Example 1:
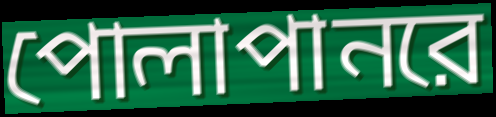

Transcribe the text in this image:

পোলাপানরে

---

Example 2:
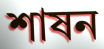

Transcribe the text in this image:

শাষন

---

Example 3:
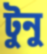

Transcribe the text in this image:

টুনু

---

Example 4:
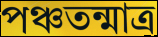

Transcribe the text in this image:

পঞ্চতন্মাত্র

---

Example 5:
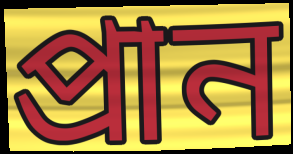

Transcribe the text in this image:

প্রান